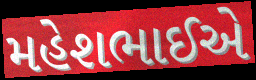
મહેશભાઈએ